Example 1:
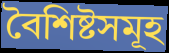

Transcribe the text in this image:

বৈশিষ্টসমূহ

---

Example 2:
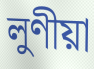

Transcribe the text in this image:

লুণীয়া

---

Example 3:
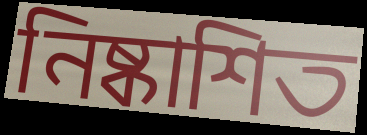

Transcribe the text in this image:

নিষ্কাশিত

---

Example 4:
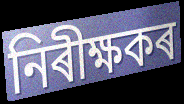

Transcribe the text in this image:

নিৰীক্ষকৰ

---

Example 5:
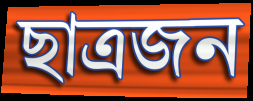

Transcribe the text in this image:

ছাত্ৰজন